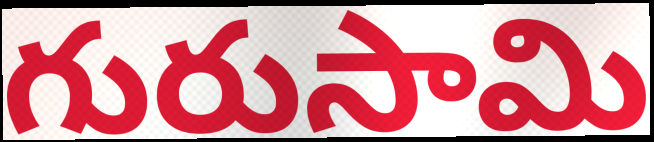
గురుసామి